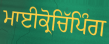
ਮਾਈਕ੍ਰੋਚਿੱਪਿੰਗ